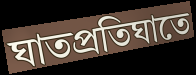
ঘাতপ্রতিঘাতে